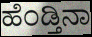
ಹೆಂಡ್ತಿನಾ